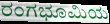
ರಂಗಭೂಮಿಯ